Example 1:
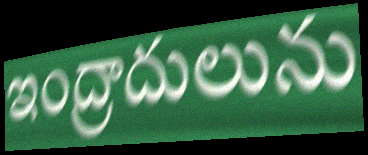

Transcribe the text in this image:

ఇంద్రాదులును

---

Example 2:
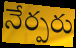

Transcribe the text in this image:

నేర్పరు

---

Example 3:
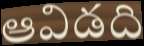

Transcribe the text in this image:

ఆవిడది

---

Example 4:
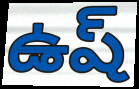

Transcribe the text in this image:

ఉష్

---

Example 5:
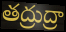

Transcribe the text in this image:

తద్రుద్రా